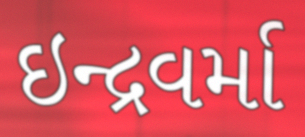
ઇન્દ્રવર્મા